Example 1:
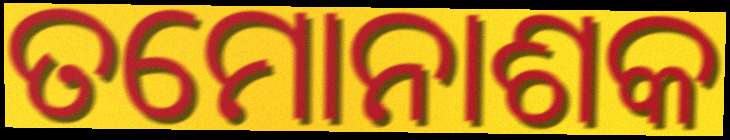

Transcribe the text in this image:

ତମୋନାଶକ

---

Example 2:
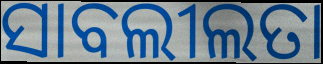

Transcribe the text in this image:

ସାବଲୀଲତା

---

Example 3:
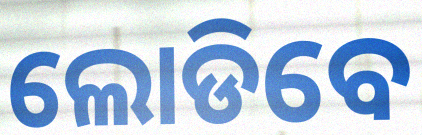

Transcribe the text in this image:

ଲୋଡିବେ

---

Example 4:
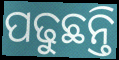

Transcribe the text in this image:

ପଢୁଛନ୍ତି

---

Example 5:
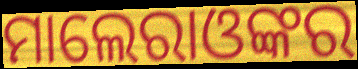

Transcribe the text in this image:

ମାଲେରାଓଙ୍କର